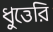
ধুত্তেরি